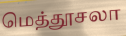
மெத்தூசலா